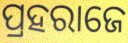
ପ୍ରହରାଜେ